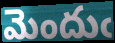
మెందుఁ